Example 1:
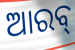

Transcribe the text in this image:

ଆରବ୍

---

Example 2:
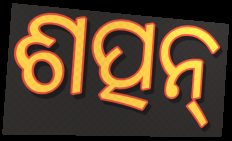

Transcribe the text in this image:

ଶତ୍ପନ୍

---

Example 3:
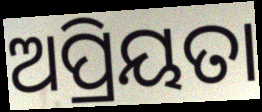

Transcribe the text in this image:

ଅପ୍ରିୟତା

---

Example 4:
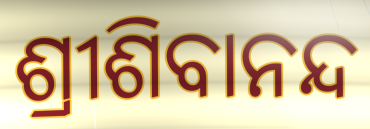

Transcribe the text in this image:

ଶ୍ରୀଶିବାନନ୍ଦ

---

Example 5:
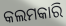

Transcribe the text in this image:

କଲମକାରି